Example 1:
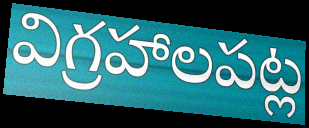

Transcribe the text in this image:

విగ్రహాలపట్ల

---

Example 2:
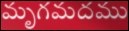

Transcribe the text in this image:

మృగమదము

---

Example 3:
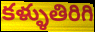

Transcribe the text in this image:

కళ్ళుతిరిగి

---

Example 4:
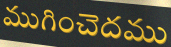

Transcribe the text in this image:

ముగించెదము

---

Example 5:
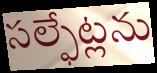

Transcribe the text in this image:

సల్ఫేట్లను